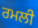
ਰਮਲੀ